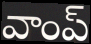
వాంప్